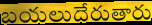
బయలుదేరుతారు